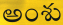
అంశు